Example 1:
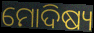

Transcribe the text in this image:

ମୋଦିଷ୍ୟ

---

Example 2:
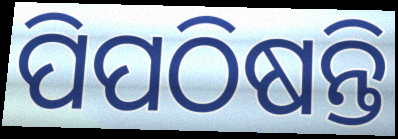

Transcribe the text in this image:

ପିପଠିଷନ୍ତି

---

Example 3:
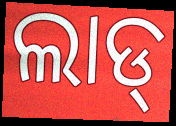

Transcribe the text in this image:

ଲାଡ୍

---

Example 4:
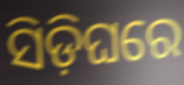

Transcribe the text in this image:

ସିଡ଼ିଘରେ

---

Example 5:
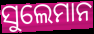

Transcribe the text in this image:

ସୁଲେମାନ